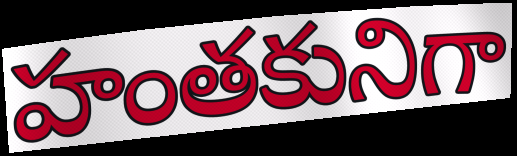
హంతకునిగా